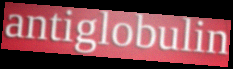
antiglobulin